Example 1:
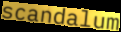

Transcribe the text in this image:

scandalum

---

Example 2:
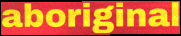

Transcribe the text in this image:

aboriginal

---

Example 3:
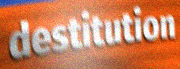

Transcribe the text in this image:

destitution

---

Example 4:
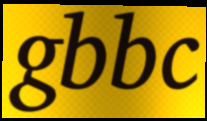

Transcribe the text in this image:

gbbc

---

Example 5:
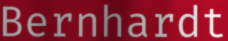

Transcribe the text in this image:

Bernhardt